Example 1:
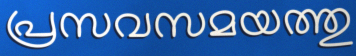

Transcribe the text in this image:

പ്രസവസമയത്തു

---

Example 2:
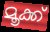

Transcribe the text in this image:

മൂക്ക്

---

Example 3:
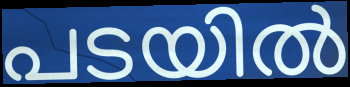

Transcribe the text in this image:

പടയിൽ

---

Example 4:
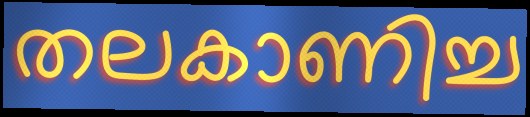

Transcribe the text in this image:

തലകാണിച്ച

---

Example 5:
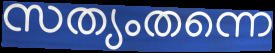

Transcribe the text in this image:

സത്യംതന്നെ